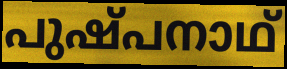
പുഷ്പനാഥ്